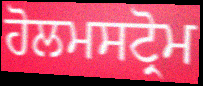
ਹੋਲਮਸਟ੍ਰੋਮ